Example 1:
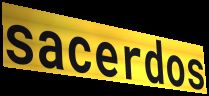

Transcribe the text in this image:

sacerdos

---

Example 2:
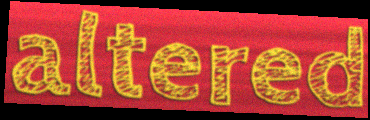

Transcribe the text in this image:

altered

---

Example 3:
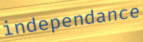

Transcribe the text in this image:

independance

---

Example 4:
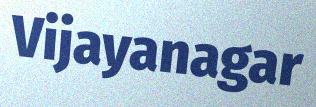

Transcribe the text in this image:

Vijayanagar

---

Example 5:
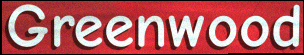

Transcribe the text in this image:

Greenwood